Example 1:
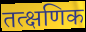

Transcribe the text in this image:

तत्क्षणिक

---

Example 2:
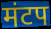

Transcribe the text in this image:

मंटप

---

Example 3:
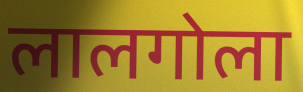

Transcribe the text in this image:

लालगोला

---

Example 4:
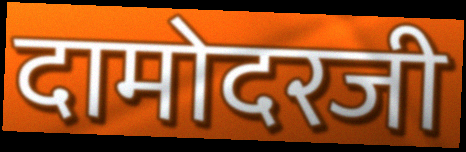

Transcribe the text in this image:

दामोदरजी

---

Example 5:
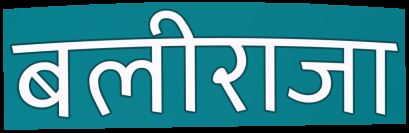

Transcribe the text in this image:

बलीराजा